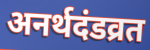
अनर्थदंडव्रत